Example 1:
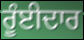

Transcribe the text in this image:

ਰੂੰਈਦਾਰ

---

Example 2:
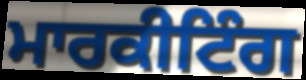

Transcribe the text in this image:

ਮਾਰਕੀਟਿੰਗ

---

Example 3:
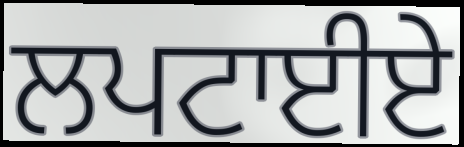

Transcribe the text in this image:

ਲਪਟਾਈਏ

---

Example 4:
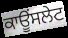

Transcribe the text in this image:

ਕਾਊਂਸਲੇਟ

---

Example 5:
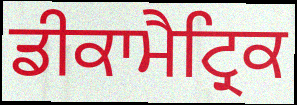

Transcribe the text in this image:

ਡੀਕਾਮੈਟ੍ਰਿਕ